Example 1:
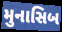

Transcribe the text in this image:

મુનાસિબ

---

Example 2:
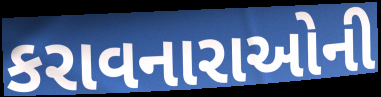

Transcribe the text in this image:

કરાવનારાઓની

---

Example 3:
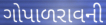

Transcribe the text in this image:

ગોપાળરાવની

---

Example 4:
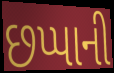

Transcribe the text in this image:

છપ્પાની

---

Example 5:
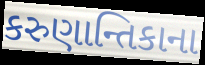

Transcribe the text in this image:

કરુણાન્તિકાના